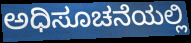
ಅಧಿಸೂಚನೆಯಲ್ಲಿ